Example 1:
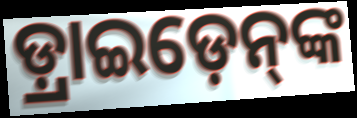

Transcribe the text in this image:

ଡ଼୍ରାଇଡ଼େନ୍‌ଙ୍କ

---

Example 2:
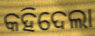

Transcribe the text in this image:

କହିଦେଲା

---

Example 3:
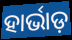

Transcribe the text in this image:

ହାର୍ଭାଡ଼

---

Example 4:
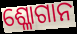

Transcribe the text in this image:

ଶ୍ଳୋଗାନ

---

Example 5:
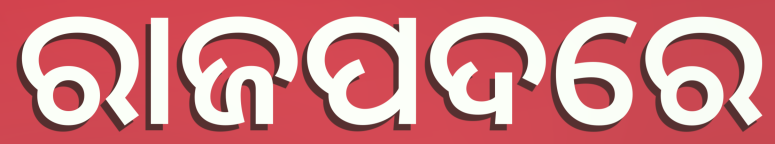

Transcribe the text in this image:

ରାଜପଦରେ